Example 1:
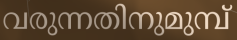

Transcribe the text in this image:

വരുന്നതിനുമുമ്പ്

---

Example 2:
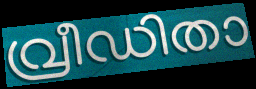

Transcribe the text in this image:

വ്രീഡിതാ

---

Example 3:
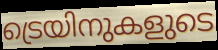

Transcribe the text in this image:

ട്രെയിനുകളുടെ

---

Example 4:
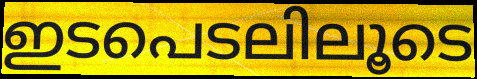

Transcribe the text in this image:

ഇടപെടലിലൂടെ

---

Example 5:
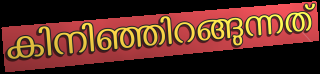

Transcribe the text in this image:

കിനിഞ്ഞിറങ്ങുന്നത്